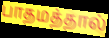
பாதமத்தால்